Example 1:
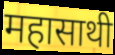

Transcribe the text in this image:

महासाथी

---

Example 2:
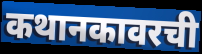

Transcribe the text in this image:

कथानकावरची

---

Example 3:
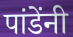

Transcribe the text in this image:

पांडेंनी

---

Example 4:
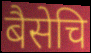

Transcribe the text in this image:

बैसेचि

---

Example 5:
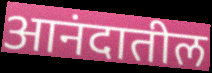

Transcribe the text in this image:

आनंदातील